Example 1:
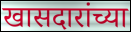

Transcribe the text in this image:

खासदारांच्या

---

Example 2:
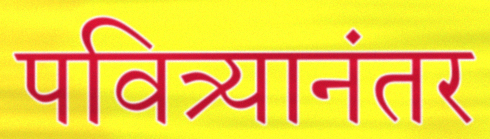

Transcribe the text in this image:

पवित्र्यानंतर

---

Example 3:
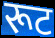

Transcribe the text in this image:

रूट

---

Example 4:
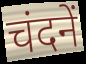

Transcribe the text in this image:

चंदनें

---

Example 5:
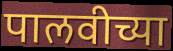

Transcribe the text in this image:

पालवीच्या